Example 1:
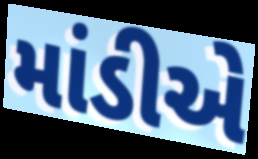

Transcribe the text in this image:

માંડીએ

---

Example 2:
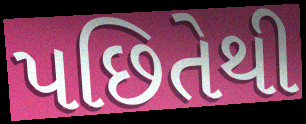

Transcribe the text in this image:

પછિતેથી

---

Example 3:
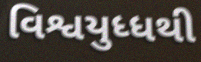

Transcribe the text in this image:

વિશ્વયુધ્ધથી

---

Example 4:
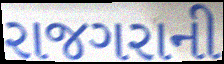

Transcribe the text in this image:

રાજગરાની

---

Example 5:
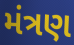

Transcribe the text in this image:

મંત્રણ